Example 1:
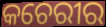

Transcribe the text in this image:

କଚେରୀର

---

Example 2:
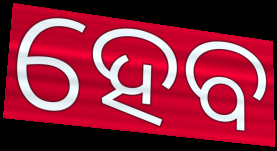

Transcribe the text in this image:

ହେବ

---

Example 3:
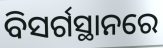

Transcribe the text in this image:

ବିସର୍ଗସ୍ଥାନରେ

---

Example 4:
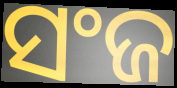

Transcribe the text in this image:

ସଂଜ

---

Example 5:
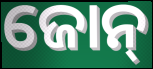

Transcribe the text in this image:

ଜୋନ୍